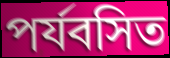
পর্যবসিত